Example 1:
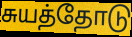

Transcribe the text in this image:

சுயத்தோடு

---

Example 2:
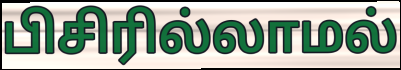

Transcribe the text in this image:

பிசிரில்லாமல்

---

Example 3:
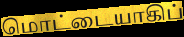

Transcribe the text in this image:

மொட்டையாகிப்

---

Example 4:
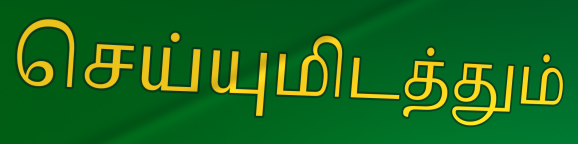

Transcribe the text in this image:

செய்யுமிடத்தும்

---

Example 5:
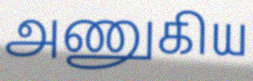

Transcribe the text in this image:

அணுகிய